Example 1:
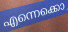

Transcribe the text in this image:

എന്നെക്കൊ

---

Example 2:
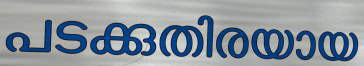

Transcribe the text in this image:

പടക്കുതിരയായ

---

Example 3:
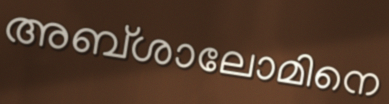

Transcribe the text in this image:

അബ്ശാലോമിനെ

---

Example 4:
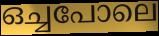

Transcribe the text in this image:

ഒച്ചപോലെ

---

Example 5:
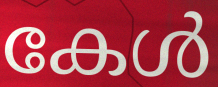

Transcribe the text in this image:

കേൾ